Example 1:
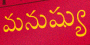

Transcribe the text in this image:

మనుష్యు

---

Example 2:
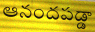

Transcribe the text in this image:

ఆనందపడ్డా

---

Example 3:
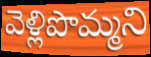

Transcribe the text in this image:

వెళ్లిపొమ్మని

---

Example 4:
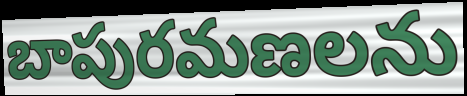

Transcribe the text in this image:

బాపురమణలను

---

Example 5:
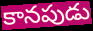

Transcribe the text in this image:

కానపుడు